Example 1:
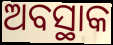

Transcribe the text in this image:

ଅବସ୍ଥାକ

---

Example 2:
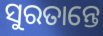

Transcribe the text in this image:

ସୁରତାନ୍ତେ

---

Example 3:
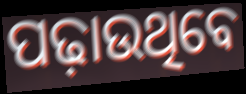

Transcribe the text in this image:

ପଢ଼ାଉଥିବେ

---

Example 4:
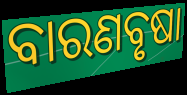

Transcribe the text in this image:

ବାରଣବୃଷା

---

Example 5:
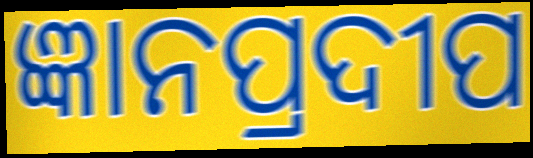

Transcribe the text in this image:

ଜ୍ଞାନପ୍ରଦୀପ